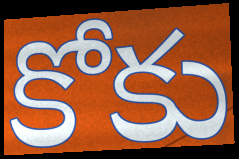
కోకు